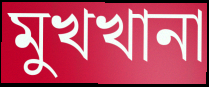
মুখখানা